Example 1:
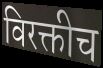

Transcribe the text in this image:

विरक्तीच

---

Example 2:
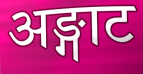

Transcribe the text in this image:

अङ्गाट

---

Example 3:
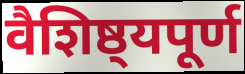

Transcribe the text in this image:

वैशिष्ठ्यपूर्ण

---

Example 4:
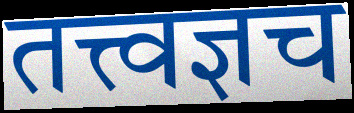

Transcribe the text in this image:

तत्त्वज्ञच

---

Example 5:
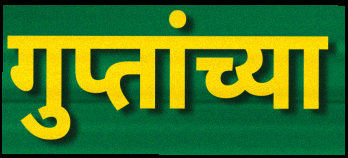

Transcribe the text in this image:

गुप्तांच्या